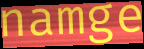
namge